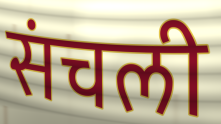
संचली